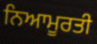
ਨਿਆਮੂਰਤੀ